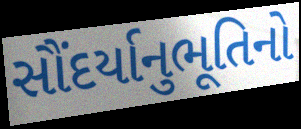
સૌંદર્યાનુભૂતિનો